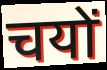
चयों